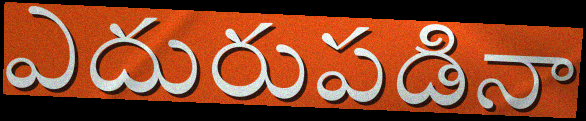
ఎదురుపడినా